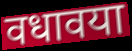
वधावया